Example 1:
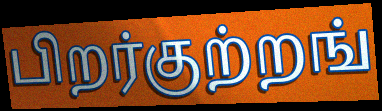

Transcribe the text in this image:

பிறர்குற்றங்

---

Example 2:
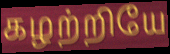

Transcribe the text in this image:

கழற்றியே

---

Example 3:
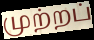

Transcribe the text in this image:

முற்றப்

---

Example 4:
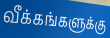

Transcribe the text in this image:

வீக்கங்களுக்கு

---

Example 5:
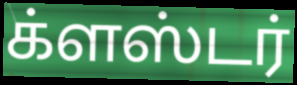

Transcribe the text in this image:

க்ளஸ்டர்